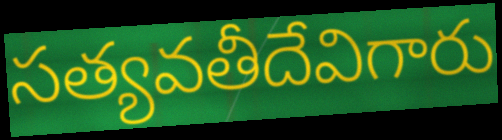
సత్యవతీదేవిగారు